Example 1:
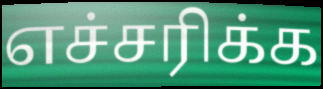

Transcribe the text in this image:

எச்சரிக்க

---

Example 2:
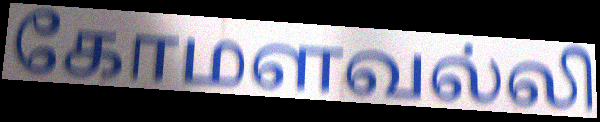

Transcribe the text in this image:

கோமளவல்லி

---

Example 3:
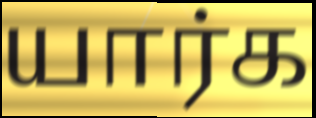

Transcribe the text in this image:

யார்க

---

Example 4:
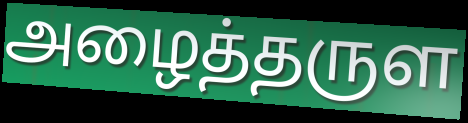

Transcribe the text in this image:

அழைத்தருள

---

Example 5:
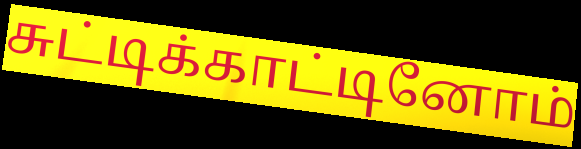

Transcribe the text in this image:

சுட்டிக்காட்டினோம்